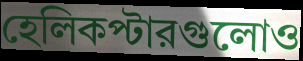
হেলিকপ্টারগুলোও